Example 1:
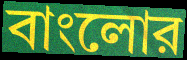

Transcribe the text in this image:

বাংলোর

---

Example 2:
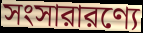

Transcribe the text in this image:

সংসারারণ্যে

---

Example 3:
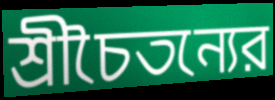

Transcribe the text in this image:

শ্রীচৈতন্যের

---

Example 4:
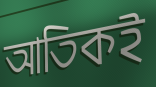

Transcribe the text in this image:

আতিকই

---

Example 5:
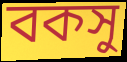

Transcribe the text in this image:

বকসু